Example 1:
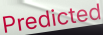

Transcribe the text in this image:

Predicted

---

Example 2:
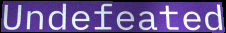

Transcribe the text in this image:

Undefeated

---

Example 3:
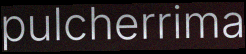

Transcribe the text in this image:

pulcherrima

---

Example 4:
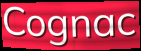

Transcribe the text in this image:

Cognac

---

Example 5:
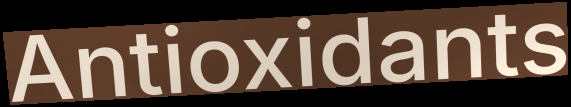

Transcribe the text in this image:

Antioxidants